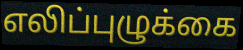
எலிப்புழுக்கை